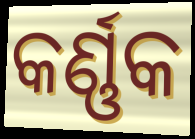
କର୍ଣ୍ଣକ